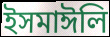
ইসমাঈলি